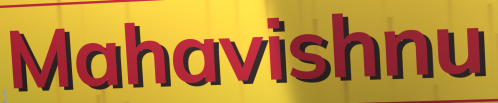
Mahavishnu